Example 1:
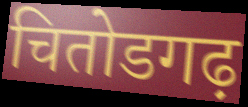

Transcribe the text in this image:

चितोडगढ़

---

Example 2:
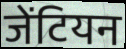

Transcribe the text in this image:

जेंटियन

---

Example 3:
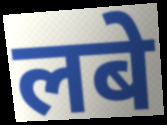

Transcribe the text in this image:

लबे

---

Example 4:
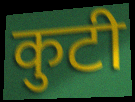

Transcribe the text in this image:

कुटी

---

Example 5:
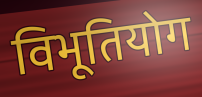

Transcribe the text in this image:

विभूतियोग